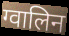
ग्वालिन